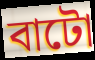
বাটো